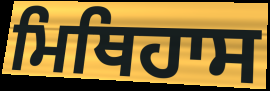
ਮਿਥਿਹਾਸ